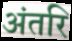
अंतरि